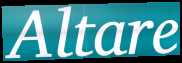
Altare